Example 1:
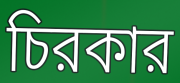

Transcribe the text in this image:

চিরকার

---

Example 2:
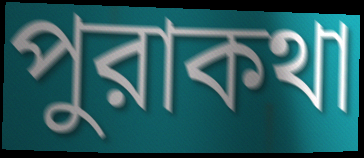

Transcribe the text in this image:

পুরাকথা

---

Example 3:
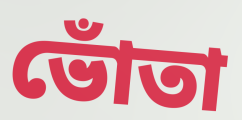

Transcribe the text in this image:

ভোঁতা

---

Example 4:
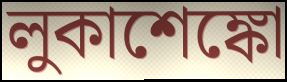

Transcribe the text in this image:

লুকাশেঙ্কো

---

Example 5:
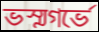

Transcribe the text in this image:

ভস্মগর্ভে